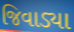
જિવાડ્યા